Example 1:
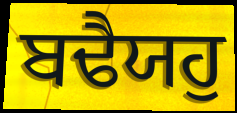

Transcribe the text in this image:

ਬਢੈਯਹੁ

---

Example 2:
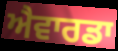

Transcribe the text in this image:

ਐਵਾਰਡਾ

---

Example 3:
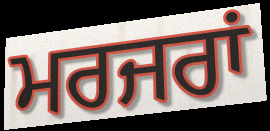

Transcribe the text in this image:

ਮਰਜਰਾਂ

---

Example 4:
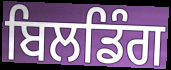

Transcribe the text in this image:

ਬਿਲਡਿੰਗ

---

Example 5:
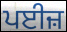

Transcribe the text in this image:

ਪਈਜ਼